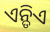
ଏନ୍ଡିଏ